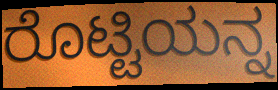
ರೊಟ್ಟಿಯನ್ನ